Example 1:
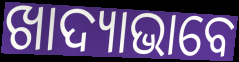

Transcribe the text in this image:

ଖାଦ୍ୟାଭାବେ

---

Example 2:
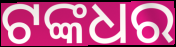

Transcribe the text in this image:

ଟଙ୍କଧର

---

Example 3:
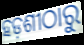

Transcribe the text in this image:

ହଡ଼ଶୀଠାରୁ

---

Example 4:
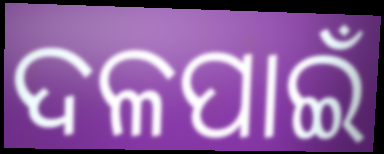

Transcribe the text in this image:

ଦଳପାଇଁ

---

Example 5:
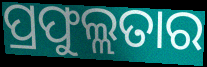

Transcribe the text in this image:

ପ୍ରଫୁଲ୍ଲତାର